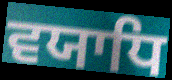
ਵਯਾਧਿ